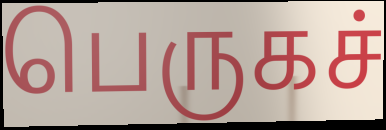
பெருகச்